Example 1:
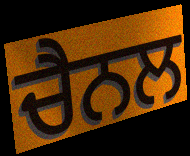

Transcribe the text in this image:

ਚੈਨਲ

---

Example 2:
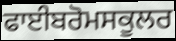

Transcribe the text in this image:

ਫਾਈਬਰੋਮਸਕੂਲਰ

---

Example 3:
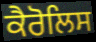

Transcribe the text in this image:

ਕੈਰੋਲਿਸ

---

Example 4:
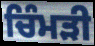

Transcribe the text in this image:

ਚਿੰਮੜੀ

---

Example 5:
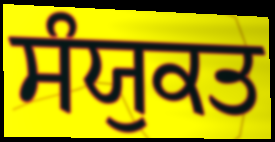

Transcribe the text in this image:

ਸੰਯੁਕਤ